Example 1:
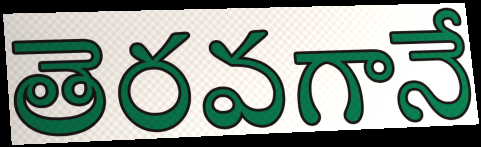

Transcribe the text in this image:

తెరవగానే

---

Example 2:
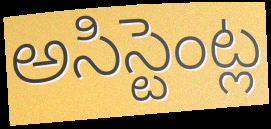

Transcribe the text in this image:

అసిస్టెంట్ల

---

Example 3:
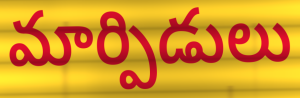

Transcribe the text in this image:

మార్పిడులు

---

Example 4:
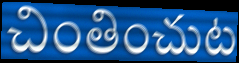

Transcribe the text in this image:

చింతించుట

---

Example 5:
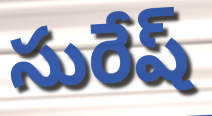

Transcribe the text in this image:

సురేష్